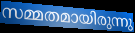
സമ്മതമായിരുന്നു